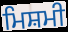
ਮਿਸ਼ਮੀ